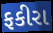
ફકીરા